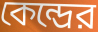
কেন্দ্রের